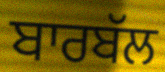
ਬਾਰਬੱਲ